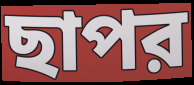
ছাপর